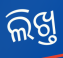
ଲିଖ୍ତ